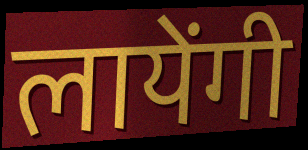
लायेंगी